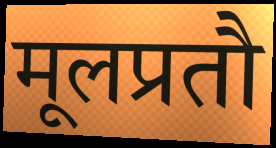
मूलप्रतौ